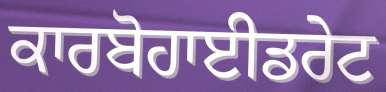
ਕਾਰਬੋਹਾਈਡਰੇਟ